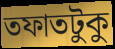
তফাতটুকু